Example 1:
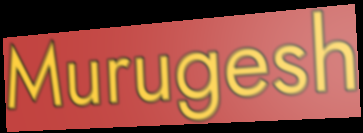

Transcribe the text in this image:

Murugesh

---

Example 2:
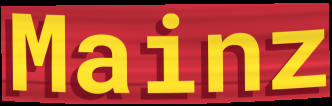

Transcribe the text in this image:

Mainz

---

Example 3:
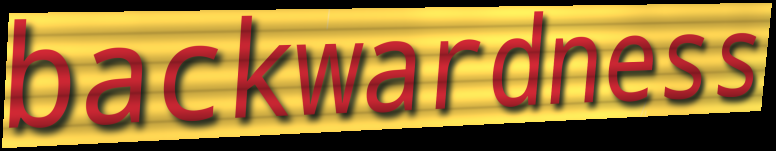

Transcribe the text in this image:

backwardness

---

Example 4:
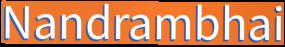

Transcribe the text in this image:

Nandrambhai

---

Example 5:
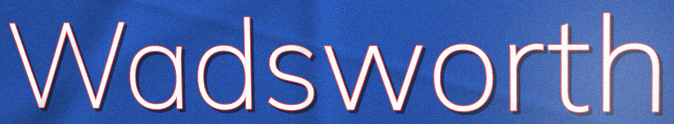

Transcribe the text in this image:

Wadsworth